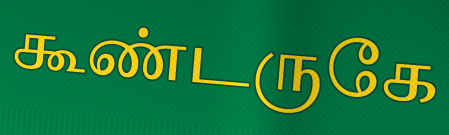
கூண்டருகே